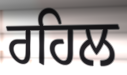
ਰਹਿਲ